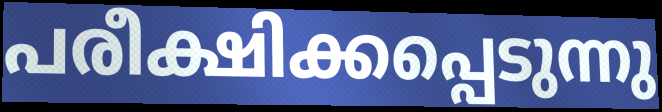
പരീക്ഷിക്കപ്പെടുന്നു